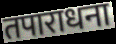
तपाराधना